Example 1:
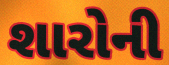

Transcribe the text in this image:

શારોની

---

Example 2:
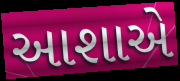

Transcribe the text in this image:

આશાએ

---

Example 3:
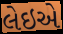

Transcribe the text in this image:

લેઇએ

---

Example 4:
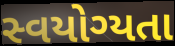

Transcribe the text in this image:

સ્વયોગ્યતા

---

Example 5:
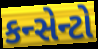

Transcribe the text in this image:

કન્સેન્ટો